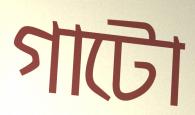
গাটো